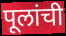
पूलांची